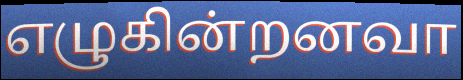
எழுகின்றனவா